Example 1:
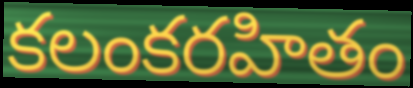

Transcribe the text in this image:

కలంకరహితం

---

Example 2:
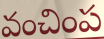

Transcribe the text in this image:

వంచింప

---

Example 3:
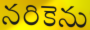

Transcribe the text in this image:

నరికెను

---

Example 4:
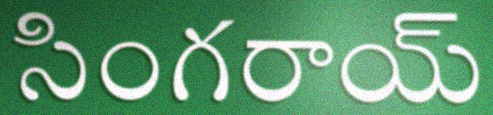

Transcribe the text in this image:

సింగరాయ్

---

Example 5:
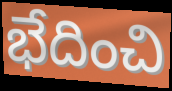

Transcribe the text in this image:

భేదించి